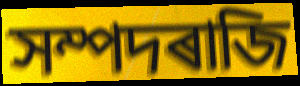
সম্পদৰাজি